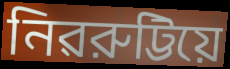
নিৱৰুট্টিয়ে